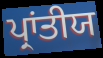
ਪ੍ਰਾਂਤੀਯ